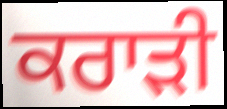
ਕਰਾੜੀ